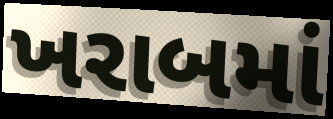
ખરાબમાં